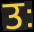
उः